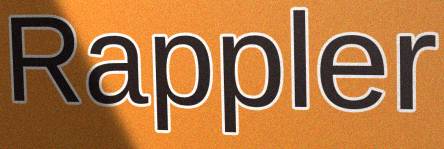
Rappler